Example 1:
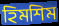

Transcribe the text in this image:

হিমশিম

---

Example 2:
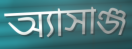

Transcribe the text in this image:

অ্যাসাঞ্জ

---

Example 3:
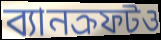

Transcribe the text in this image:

ব্যানক্রফটও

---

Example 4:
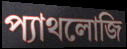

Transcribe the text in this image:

প্যাথলোজি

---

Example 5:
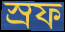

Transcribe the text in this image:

স্রফ